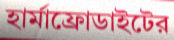
হার্মাফ্রোডাইটের